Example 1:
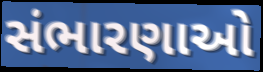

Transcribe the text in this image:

સંભારણાઓ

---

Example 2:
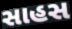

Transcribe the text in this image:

સાહસ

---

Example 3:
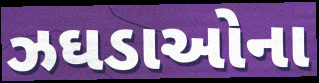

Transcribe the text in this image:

ઝઘડાઓના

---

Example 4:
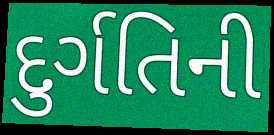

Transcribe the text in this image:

દુર્ગતિની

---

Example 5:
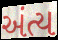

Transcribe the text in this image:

અંત્ય